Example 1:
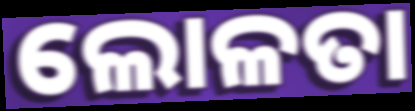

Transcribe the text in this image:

ଲୋଳତା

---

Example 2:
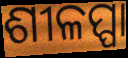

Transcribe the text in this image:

ଶୀଳପ୍ପା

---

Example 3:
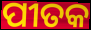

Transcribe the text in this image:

ପୀତକ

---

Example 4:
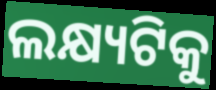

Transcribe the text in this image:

ଲକ୍ଷ୍ୟଟିକୁ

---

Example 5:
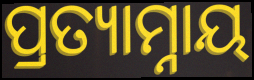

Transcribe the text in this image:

ପ୍ରତ୍ୟାମ୍ନାୟ